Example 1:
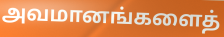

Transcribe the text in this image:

அவமானங்களைத்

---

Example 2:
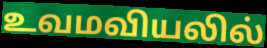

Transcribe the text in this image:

உவமவியலில்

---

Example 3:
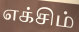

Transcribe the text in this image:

எக்சிம்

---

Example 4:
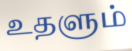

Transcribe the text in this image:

உதளும்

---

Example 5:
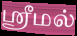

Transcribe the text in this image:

ஶ்ரீமல்